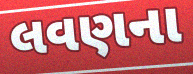
લવણના